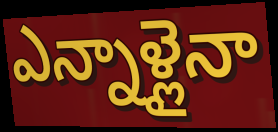
ఎన్నాళ్లైనా